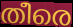
തീരെ